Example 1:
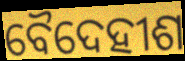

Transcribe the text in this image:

ବୈଦେହୀଶ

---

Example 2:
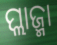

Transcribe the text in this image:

ପ୍ଲାଜ୍ମା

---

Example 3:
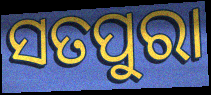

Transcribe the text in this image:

ସତପୁରା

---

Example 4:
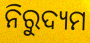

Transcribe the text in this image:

ନିରୁଦ୍ୟମ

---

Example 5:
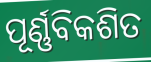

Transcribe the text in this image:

ପୂର୍ଣ୍ଣବିକଶିତ